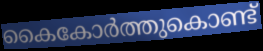
കൈകോർത്തുകൊണ്ട്